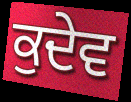
ਕੁਦੇਵ